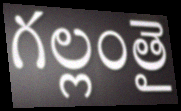
గల్లంతై